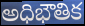
అధిభౌతిక